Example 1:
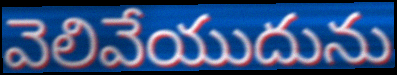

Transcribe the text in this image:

వెలివేయుదును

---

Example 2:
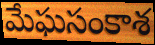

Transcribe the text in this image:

మేఘసంకాశ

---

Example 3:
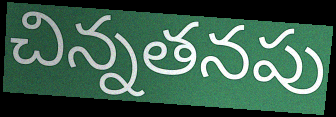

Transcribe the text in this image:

చిన్నతనపు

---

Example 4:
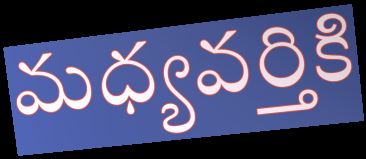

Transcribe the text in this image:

మధ్యవర్తికి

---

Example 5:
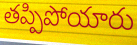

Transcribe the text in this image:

తప్పిపోయారు